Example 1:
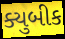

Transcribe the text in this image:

ક્યુબીક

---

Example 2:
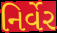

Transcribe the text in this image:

નિર્વેર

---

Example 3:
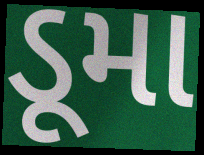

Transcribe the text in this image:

ડૂમા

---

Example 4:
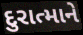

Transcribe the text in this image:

દુરાત્માને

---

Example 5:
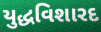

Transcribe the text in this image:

યુદ્ધવિશારદ